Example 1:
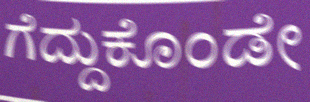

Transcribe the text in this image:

ಗೆದ್ದುಕೊಂಡೇ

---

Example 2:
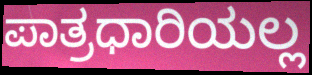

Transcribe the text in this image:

ಪಾತ್ರಧಾರಿಯಲ್ಲ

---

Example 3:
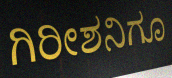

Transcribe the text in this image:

ಗಿರೀಶನಿಗೂ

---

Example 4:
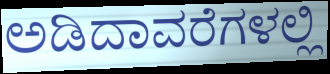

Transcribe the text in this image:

ಅಡಿದಾವರೆಗಳಲ್ಲಿ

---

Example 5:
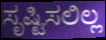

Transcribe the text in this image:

ಸೃಷ್ಟಿಸಲಿಲ್ಲ